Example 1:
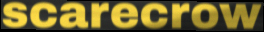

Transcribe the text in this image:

scarecrow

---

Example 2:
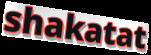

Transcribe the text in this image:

shakatat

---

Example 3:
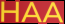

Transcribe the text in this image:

HAA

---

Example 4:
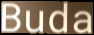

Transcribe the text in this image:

Buda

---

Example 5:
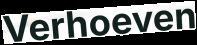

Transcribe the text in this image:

Verhoeven